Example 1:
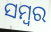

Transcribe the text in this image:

ସମ୍ବର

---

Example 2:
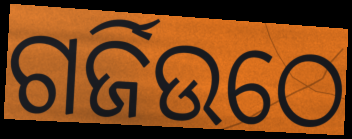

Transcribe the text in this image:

ଗର୍ଜିଉଠେ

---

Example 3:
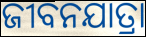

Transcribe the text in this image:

ଜୀବନଯାତ୍ରା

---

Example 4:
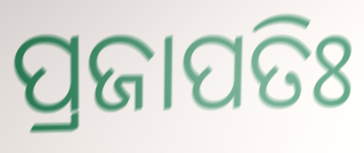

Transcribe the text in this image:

ପ୍ରଜାପତିଃ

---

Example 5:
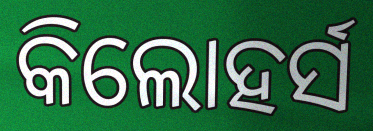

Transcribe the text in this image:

କିଲୋହର୍ସ